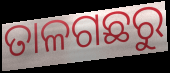
ତାଳଗଛରୁ